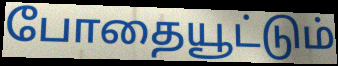
போதையூட்டும்